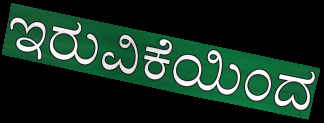
ಇರುವಿಕೆಯಿಂದ